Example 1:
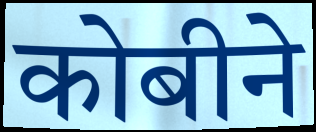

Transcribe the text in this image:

कोबीने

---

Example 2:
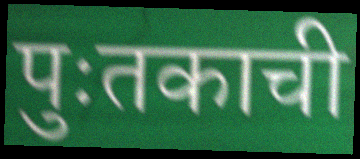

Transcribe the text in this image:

पुःतकाची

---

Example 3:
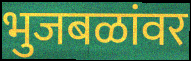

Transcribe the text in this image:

भुजबळांवर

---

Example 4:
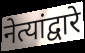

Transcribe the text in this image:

नेत्यांद्वारे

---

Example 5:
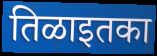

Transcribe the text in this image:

तिळाइतका